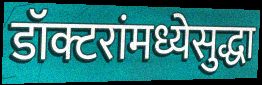
डॉक्टरांमध्येसुद्धा